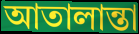
আতালান্তা